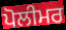
ਪੋਲੀਮਰ